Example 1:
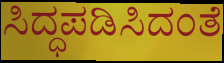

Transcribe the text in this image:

ಸಿದ್ಧಪಡಿಸಿದಂತೆ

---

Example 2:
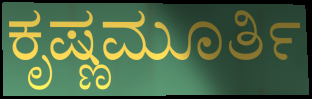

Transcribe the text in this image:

ಕೃಷ್ಣಮೂರ್ತಿ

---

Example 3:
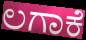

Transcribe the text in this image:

ಲಗಾಕೆ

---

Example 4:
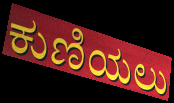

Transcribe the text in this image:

ಕುಣಿಯಲು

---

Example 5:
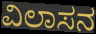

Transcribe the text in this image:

ವಿಲಾಸನ